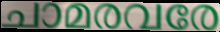
ചാമരവരേ